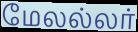
மேலல்லர்